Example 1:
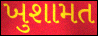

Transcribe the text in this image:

ખુશામત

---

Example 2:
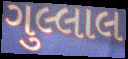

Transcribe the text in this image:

ગુલ્લાલ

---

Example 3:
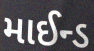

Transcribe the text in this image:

માઈન્ડ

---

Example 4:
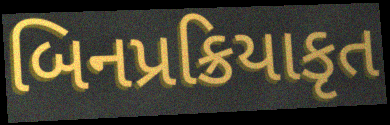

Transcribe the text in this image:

બિનપ્રક્રિયાકૃત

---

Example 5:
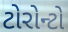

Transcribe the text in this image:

ટોરોન્ટો